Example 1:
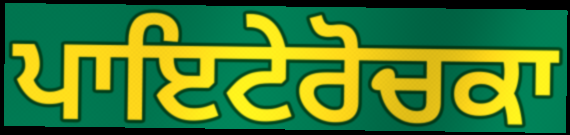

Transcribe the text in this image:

ਪਾਇਟੇਰੋਚਕਾ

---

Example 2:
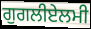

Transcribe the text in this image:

ਗੁਗਲੀਏਲਮੀ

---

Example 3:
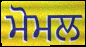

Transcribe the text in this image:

ਮੋਮਲ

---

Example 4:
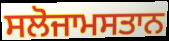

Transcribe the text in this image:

ਸਲੋਜਾਮਸਤਾਨ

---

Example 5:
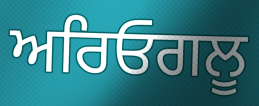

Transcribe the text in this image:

ਅਰਿਓਗਲੂ